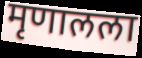
मृणालला